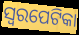
ସ୍ୱରପେଟିକା